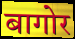
बागोर